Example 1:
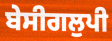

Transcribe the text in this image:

ਬੇਸੀਗਲੁਪੀ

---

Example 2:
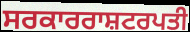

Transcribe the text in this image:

ਸਰਕਾਰਰਾਸ਼ਟਰਪਤੀ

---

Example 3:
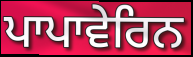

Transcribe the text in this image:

ਪਾਪਾਵੇਰਿਨ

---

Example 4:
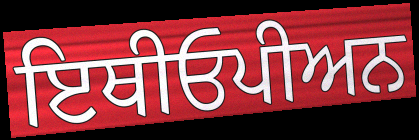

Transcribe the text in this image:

ਇਥੀਓਪੀਅਨ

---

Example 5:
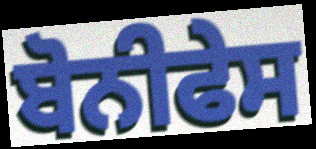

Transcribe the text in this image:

ਬੋਨੀਫੇਸ